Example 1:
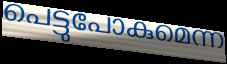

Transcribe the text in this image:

പെട്ടുപോകുമെന്ന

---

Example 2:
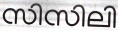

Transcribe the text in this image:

സിസിലി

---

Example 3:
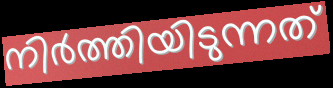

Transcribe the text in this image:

നിർത്തിയിടുന്നത്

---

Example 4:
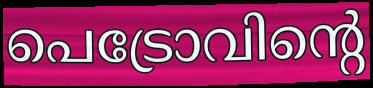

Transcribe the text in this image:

പെട്രോവിന്റെ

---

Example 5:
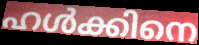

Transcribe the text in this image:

ഹൾക്കിനെ